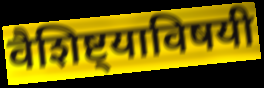
वैशिष्ट्याविषयी